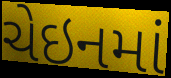
ચેઇનમાં